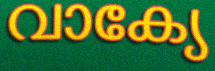
വാക്യേ